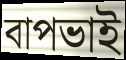
বাপভাই